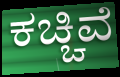
ಕಚ್ಚಿವೆ